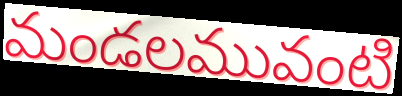
మండలమువంటి